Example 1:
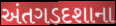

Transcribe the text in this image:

અંતગડદશાના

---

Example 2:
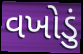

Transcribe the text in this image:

વખોડું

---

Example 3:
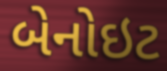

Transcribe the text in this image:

બેનોઇટ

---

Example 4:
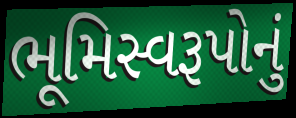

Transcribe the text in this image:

ભૂમિસ્વરૂપોનું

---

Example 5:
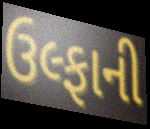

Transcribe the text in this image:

ઉલ્ફાની